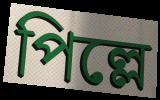
পিল্লে